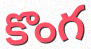
కొంగ